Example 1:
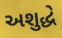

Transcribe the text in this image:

અશુદ્ધે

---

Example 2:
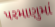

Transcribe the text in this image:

પરમાણુમાં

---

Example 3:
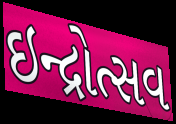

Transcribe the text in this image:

ઇન્દ્રોત્સવ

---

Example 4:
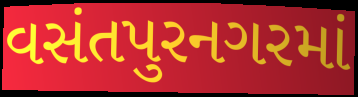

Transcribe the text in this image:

વસંતપુરનગરમાં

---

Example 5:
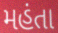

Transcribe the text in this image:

મહંતા